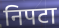
निपटा